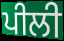
ਪੀਲੀ